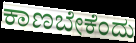
ಕಾಣಬೇಕೆಂದು